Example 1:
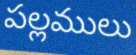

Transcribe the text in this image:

పల్లములు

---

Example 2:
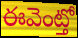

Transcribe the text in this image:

ఈవెంట్తో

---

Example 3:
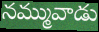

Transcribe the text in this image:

నమ్మువాడు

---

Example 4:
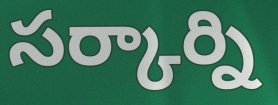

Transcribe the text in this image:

సర్కార్ని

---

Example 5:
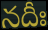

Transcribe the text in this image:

నదీః